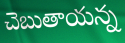
చెబుతాయన్న